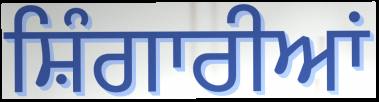
ਸ਼ਿੰਗਾਰੀਆਂ